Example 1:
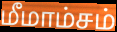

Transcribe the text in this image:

மீமாம்சம்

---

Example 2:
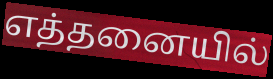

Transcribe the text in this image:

எத்தனையில்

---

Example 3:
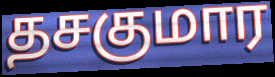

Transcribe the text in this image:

தசகுமார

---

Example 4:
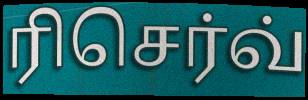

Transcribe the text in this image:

ரிசெர்வ்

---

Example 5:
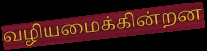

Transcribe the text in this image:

வழியமைக்கின்றன